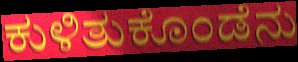
ಕುಳಿತುಕೊಂಡೆನು